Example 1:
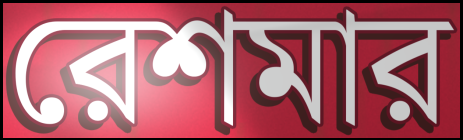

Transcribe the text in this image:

রেশমার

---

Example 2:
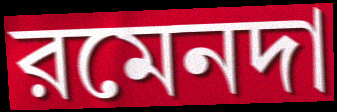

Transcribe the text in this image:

রমেনদা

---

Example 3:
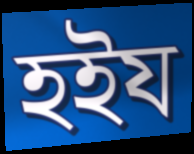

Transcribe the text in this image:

হইয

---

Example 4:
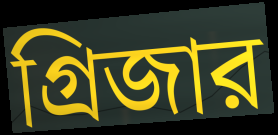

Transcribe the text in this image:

গ্রিজার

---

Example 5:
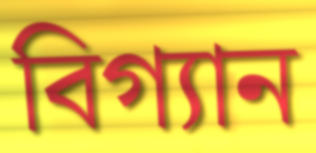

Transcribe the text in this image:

বিগ্যান